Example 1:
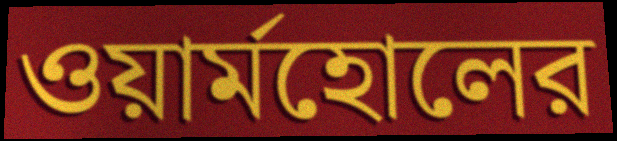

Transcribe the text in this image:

ওয়ার্মহোলের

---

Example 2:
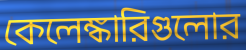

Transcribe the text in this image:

কেলেঙ্কারিগুলোর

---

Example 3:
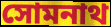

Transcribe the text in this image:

সোমনাথ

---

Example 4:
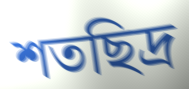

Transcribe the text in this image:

শতছিদ্র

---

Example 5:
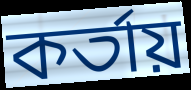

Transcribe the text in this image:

কর্তায়